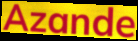
Azande